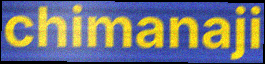
chimanaji